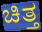
ಚಿತ್ತ